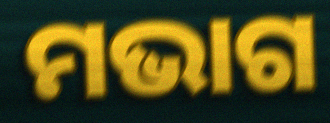
ମଭାଗ